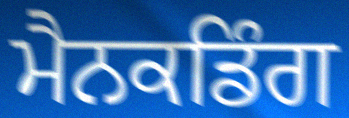
ਮੈਨਕਡਿੰਗ